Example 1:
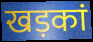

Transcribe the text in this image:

खड़कां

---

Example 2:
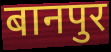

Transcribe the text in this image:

बानपुर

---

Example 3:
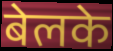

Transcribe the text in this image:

बेलके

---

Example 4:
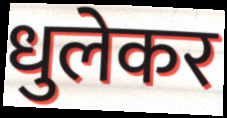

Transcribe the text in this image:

धुलेकर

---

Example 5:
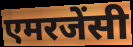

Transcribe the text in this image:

एमरजेंसी